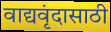
वाद्यवृंदासाठी